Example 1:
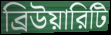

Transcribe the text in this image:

ব্রিউয়ারিটি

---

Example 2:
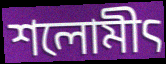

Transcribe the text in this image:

শলোমীৎ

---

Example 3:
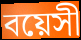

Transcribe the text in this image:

বয়েসী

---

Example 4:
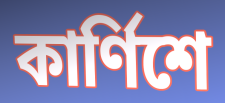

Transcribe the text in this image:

কার্ণিশে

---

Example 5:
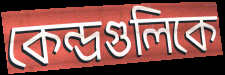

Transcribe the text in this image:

কেন্দ্রগুলিকে